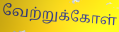
வேற்றுக்கோள்